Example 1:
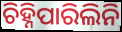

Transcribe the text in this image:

ଚିହ୍ନିପାରିଲିନି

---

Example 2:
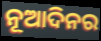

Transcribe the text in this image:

ନୂଆଦିନର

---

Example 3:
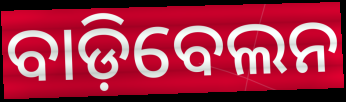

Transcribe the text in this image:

ବାଡ଼ିବେଲନ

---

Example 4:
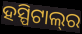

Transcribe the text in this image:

ହସ୍ପିଟାଲ୍‌ର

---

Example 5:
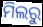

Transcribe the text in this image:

ମିଲରୁ